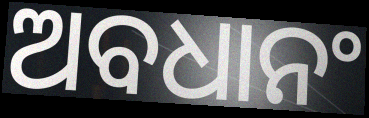
ଅବଧାନଂ